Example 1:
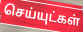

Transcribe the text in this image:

செய்யுட்கள்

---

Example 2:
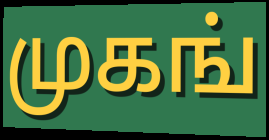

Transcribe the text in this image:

முகங்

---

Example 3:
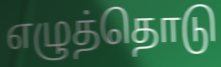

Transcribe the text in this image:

எழுத்தொடு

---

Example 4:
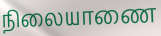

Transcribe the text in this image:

நிலையாணை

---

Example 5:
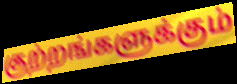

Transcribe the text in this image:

குற்றங்களுக்கும்